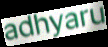
adhyaru